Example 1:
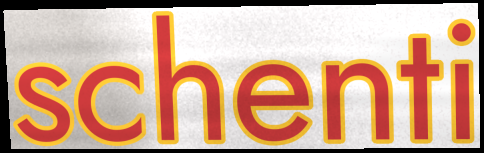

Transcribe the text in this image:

schenti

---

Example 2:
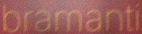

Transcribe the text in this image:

bramanti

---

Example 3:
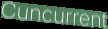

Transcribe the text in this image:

Cuncurrent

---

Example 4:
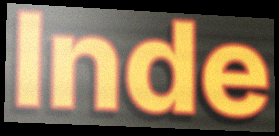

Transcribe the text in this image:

Inde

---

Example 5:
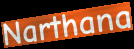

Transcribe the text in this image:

Narthana